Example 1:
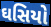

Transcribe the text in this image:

ઘસિયો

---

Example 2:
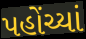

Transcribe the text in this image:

પહોંચ્યાં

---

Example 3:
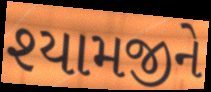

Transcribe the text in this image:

શ્યામજીને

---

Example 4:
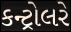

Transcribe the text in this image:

કન્ટ્રોલરે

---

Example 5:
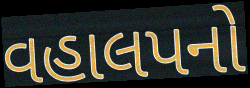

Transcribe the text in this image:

વહાલપનો